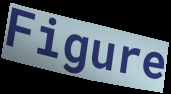
Figure